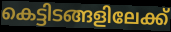
കെട്ടിടങ്ങളിലേക്ക്